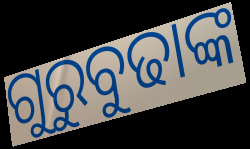
ଗୁରୁବୁଢାଙ୍କ